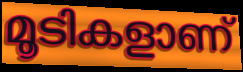
മൂടികളാണ്